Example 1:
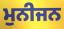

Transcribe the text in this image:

ਮੁਨੀਜਨ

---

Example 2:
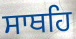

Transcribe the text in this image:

ਸਾਥਹਿ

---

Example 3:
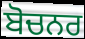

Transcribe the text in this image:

ਬੋਚਨਰ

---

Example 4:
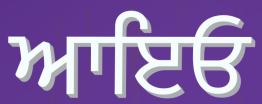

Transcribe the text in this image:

ਆਇਓ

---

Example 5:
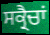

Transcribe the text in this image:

ਸਕ੍ਰੈਚਾਂ